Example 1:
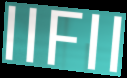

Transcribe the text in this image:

IIFII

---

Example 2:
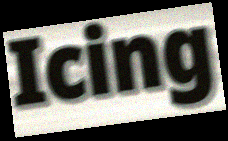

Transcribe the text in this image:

Icing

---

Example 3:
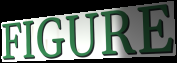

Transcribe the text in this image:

FIGURE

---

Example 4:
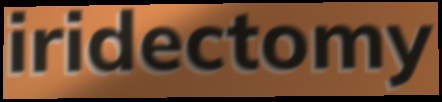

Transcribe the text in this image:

iridectomy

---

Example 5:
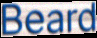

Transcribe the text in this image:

Beard